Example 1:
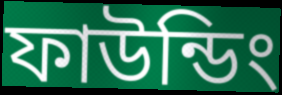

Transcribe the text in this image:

ফাউন্ডিং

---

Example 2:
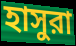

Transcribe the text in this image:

হাসুরা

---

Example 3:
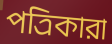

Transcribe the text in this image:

পত্রিকারা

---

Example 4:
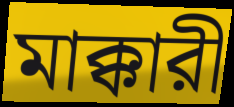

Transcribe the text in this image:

মাক্কারী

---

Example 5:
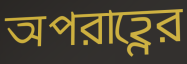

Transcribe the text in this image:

অপরাহ্ণের